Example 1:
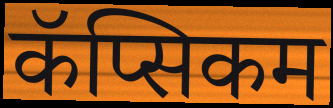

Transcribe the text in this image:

कॅप्सिकम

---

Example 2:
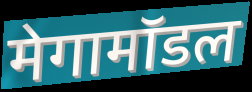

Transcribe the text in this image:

मेगामॉडल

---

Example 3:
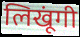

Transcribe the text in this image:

लिखूंगी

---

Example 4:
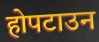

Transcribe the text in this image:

होपटाउन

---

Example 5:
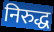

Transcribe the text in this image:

निरुद्ध